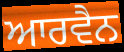
ਆਰਵੈਨ